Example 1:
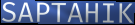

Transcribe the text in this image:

SAPTAHIK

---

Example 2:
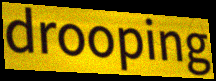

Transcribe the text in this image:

drooping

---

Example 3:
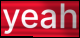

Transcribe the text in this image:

yeah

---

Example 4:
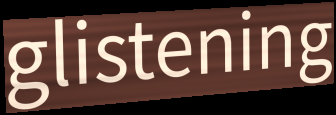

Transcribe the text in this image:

glistening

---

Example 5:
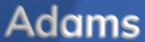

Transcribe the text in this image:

Adams